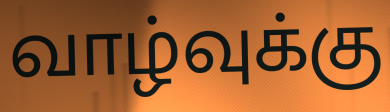
வாழ்வுக்கு